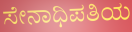
ಸೇನಾಧಿಪತಿಯ